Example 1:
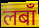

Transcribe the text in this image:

लबाँ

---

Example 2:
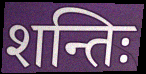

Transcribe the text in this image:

शन्तिः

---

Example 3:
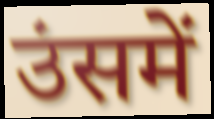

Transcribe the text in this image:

उंसमें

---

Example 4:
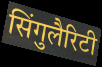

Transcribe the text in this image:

सिंगुलैरिटी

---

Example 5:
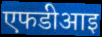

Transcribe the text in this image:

एफडीआइ